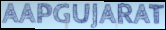
AAPGUJARAT